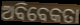
ଅବିବେକତା